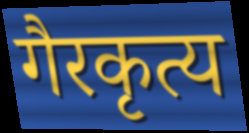
गैरकृत्य